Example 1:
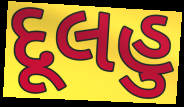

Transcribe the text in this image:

દૂલહુ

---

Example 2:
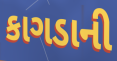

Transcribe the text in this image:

કાગડાની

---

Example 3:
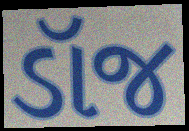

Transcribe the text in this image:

ડૉજ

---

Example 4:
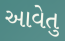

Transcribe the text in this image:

આવેતુ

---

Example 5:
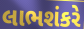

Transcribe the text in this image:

લાભશંકરે